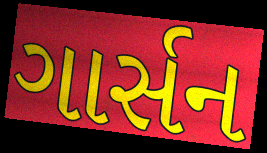
ગાર્સન